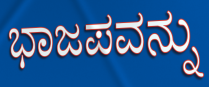
ಭಾಜಪವನ್ನು